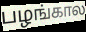
பழங்கால